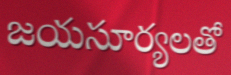
జయసూర్యలతో